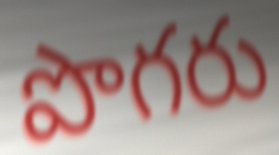
పొగరు